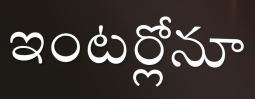
ఇంటర్లోనూ